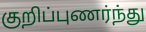
குறிப்புணர்ந்து